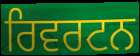
ਰਿਵਰਟਨ